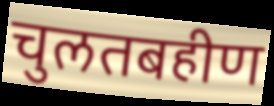
चुलतबहीण